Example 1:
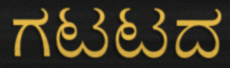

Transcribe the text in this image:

ಗಟಟದ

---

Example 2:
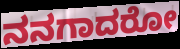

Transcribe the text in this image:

ನನಗಾದರೋ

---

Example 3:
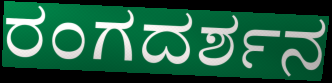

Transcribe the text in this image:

ರಂಗದರ್ಶನ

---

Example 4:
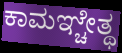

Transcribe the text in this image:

ಕಾಮಞ್ಚೇತ್ಥ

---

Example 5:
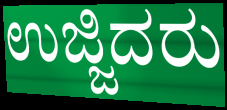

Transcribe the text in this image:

ಉಜ್ಜಿದರು